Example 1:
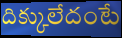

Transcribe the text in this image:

దిక్కులేదంటే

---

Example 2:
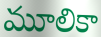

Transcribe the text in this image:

మూలికా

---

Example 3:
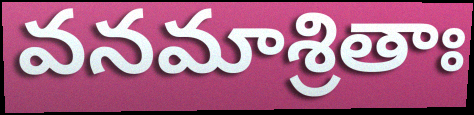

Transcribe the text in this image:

వనమాశ్రితాః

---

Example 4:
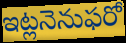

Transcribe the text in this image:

ఇట్లనెనుఫరో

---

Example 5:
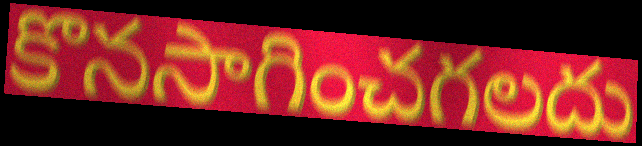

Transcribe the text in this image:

కొనసాగించగలదు